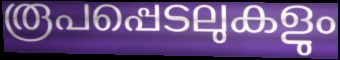
രൂപപ്പെടലുകളും